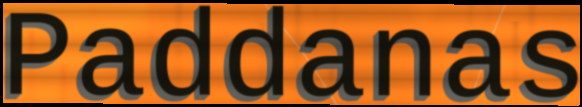
Paddanas